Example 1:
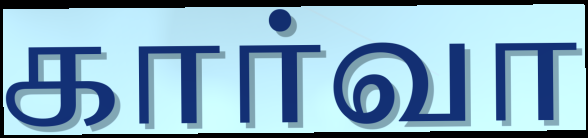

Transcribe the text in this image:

கார்வா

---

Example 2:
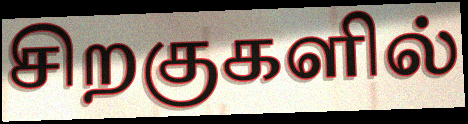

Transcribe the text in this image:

சிறகுகளில்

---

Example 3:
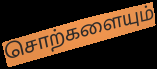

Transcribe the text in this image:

சொற்களையும்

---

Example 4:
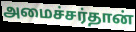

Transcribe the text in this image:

அமைச்சர்தான்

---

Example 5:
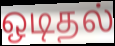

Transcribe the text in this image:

ஒடிதல்